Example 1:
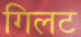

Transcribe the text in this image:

गिलट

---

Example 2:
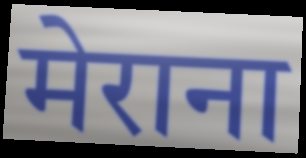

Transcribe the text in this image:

मेराना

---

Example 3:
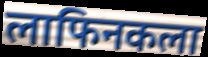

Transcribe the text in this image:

लाफिनकला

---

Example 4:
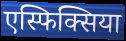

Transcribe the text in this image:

एस्फिक्सिया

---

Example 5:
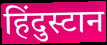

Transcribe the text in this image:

हिंदुस्टान